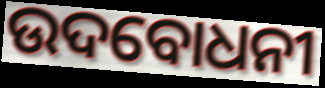
ଉଦବୋଧନୀ